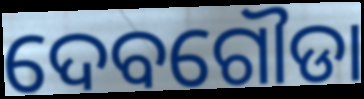
ଦେବଗୌଡା